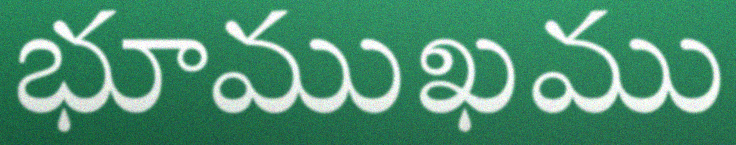
భూముఖము